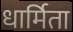
धार्मिता